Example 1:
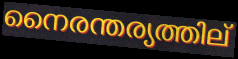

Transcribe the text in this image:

നൈരന്തര്യത്തില്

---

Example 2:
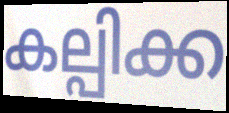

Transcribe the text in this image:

കല്പിക്ക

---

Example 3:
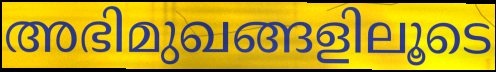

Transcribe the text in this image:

അഭിമുഖങ്ങളിലൂടെ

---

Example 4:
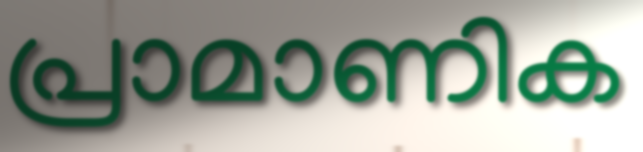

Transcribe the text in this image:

പ്രാമാണിക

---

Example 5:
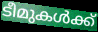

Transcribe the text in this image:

ടീമുകൾക്ക്